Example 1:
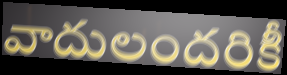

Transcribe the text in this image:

వాదులందరికీ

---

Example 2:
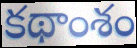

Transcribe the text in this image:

కథాంశం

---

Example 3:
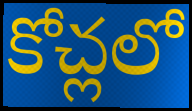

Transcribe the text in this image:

కోచ్లలో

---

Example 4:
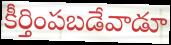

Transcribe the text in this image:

కీర్తింపబడేవాడూ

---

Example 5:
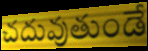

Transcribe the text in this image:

చదువుతుండే